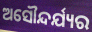
ଅସୌନ୍ଦର୍ଯ୍ୟର